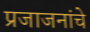
प्रजाजनांचे